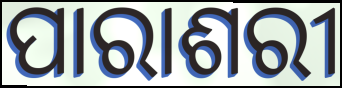
ପାରାଶରୀ